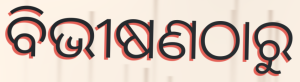
ବିଭୀଷଣଠାରୁ